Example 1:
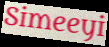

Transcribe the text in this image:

Simeeyi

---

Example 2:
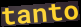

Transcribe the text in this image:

tanto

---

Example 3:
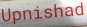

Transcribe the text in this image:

Upnishad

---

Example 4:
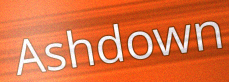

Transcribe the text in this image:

Ashdown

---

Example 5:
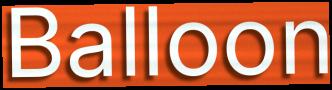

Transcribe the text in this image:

Balloon